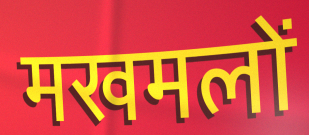
मखमलों